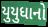
યુયુધાનો